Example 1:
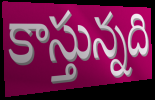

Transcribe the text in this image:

కాస్తున్నది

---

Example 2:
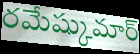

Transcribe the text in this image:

రమేష్కుమార్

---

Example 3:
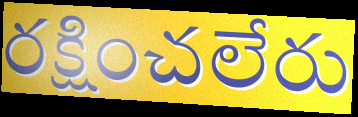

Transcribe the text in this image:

రక్షించలేరు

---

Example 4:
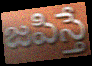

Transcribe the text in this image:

జపిస్తే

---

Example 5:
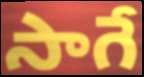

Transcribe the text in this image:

సాగే